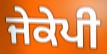
ਜੇਕੇਪੀ